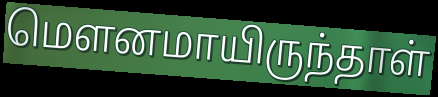
மௌனமாயிருந்தாள்